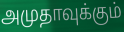
அமுதாவுக்கும்